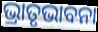
ଭ୍ରାତୃଭାବନା